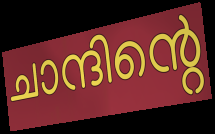
ചാന്ദിന്റെ